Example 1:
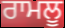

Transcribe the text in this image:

ਰਾਮਲੂ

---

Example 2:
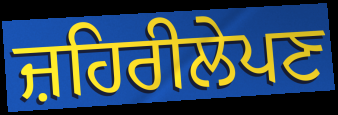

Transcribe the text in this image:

ਜ਼ਹਿਰੀਲੇਪਣ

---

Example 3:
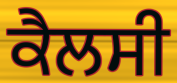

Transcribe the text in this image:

ਕੈਲਸੀ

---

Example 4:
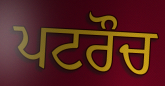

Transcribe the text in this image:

ਪਟਰੌਚ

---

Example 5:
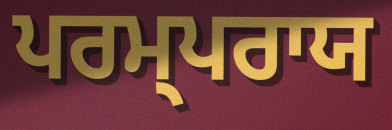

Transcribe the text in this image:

ਪਰਮ੍ਪਰਾਯ